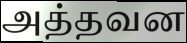
அத்தவன